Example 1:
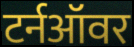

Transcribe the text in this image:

टर्नऑवर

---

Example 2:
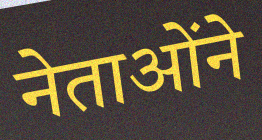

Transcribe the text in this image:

नेताओंने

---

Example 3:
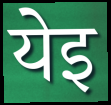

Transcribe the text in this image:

येइ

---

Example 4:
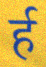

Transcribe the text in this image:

र्ह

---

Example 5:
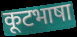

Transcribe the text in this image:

कूटभाषा